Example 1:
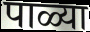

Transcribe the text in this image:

पाळ्या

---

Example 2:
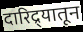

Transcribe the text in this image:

दारिद्र्यातून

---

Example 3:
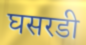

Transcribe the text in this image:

घसरडी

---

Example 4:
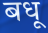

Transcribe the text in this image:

बधू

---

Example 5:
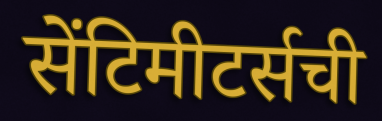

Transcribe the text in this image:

सेंटिमीटर्सची